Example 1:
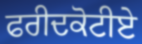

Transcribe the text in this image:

ਫਰੀਦਕੋਟੀਏ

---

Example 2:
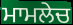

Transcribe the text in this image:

ਮਾਮਲੇਚ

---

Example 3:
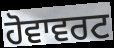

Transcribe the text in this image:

ਹੋਵਾਵਰਟ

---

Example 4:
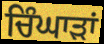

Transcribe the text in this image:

ਚਿੰਘਾੜਾਂ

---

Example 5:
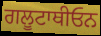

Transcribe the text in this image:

ਗਲੂਟਾਥੀਓਨ